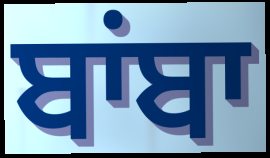
ਬਾਂਬਾ